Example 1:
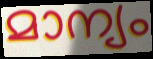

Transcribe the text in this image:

മാന്യം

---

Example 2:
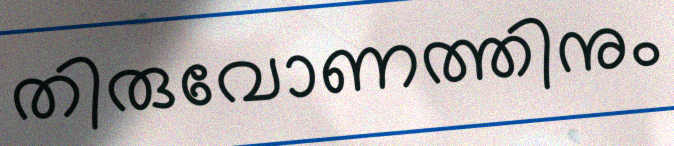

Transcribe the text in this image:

തിരുവോണത്തിനും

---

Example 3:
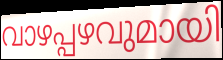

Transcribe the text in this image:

വാഴപ്പഴവുമായി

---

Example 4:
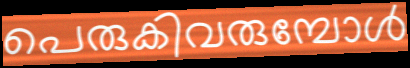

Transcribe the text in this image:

പെരുകിവരുമ്പോൾ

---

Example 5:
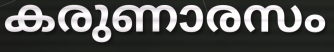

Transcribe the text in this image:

കരുണാരസം